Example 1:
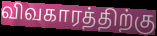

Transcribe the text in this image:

விவகாரத்திற்கு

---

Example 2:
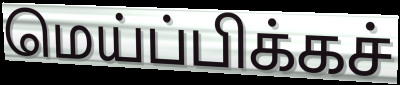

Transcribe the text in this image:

மெய்ப்பிக்கச்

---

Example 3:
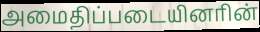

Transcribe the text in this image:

அமைதிப்படையினரின்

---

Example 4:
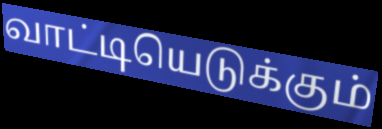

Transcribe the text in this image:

வாட்டியெடுக்கும்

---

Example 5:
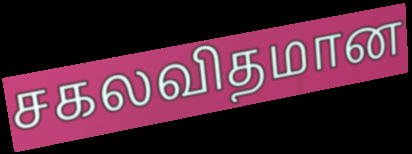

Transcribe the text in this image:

சகலவிதமான